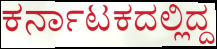
ಕರ್ನಾಟಕದಲ್ಲಿದ್ದ